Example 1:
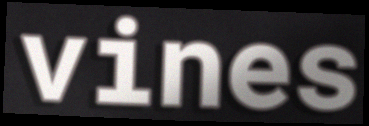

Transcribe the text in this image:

vines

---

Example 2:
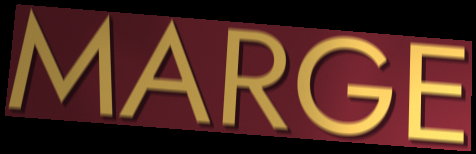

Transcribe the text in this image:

MARGE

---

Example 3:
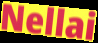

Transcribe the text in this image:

Nellai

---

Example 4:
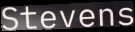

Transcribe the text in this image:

Stevens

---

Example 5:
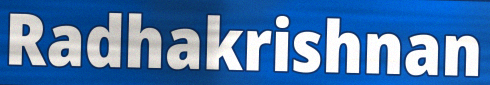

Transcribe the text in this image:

Radhakrishnan